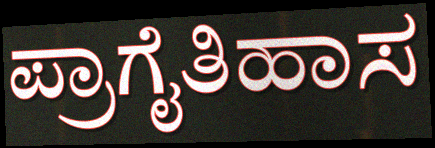
ಪ್ರಾಗೈತಿಹಾಸ